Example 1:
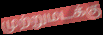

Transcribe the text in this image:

முற்றுமடக்கு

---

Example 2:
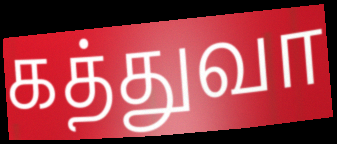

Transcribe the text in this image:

கத்துவா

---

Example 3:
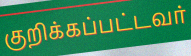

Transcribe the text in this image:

குறிக்கப்பட்டவர்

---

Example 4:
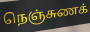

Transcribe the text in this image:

நெஞ்சுணக்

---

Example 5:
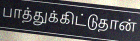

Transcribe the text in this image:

பாத்துக்கிட்டுதான்